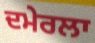
ਦਮੇਰਲਾ